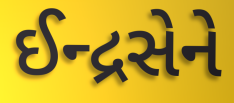
ઈન્દ્રસેને